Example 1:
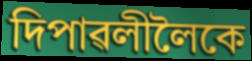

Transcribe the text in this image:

দিপাৱলীলৈকে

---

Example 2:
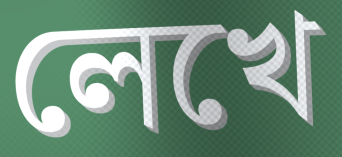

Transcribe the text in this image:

লেখে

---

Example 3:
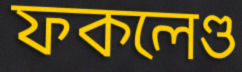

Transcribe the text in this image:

ফকলেণ্ড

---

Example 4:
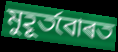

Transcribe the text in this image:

মুহূৰ্তবোৰত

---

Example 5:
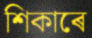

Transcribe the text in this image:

শিকাৰে